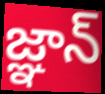
జ్ఞాన్